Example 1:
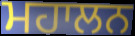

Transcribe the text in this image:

ਮਹਾਲਨ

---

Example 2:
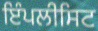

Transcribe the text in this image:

ਇੰਪਲੀਸਿਟ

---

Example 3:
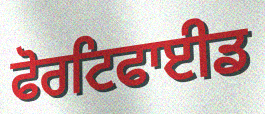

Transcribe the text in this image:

ਫੋਰਟਿਫਾਈਡ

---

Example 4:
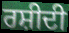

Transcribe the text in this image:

ਰਸ਼ੀਦੀ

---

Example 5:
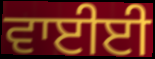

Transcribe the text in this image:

ਵਾਈਈ